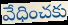
వేధించకు